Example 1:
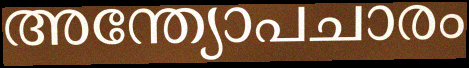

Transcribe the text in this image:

അന്ത്യോപചാരം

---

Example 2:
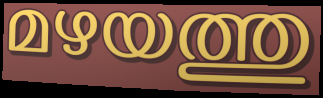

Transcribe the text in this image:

മഴയത്തു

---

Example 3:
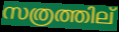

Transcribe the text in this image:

സത്രത്തില്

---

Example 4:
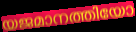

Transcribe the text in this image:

യജമാനത്തിയോ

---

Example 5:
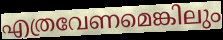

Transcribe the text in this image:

എത്രവേണമെങ്കിലും